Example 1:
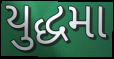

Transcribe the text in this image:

યુદ્ધમા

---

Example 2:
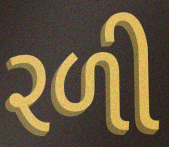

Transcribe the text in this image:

રળી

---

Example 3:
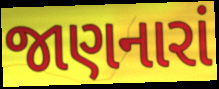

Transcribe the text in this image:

જાણનારાં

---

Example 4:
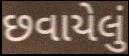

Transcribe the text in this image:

છવાયેલું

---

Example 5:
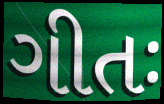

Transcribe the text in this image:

ગીતઃ